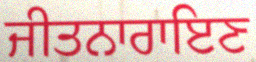
ਜੀਤਨਾਰਾਇਣ